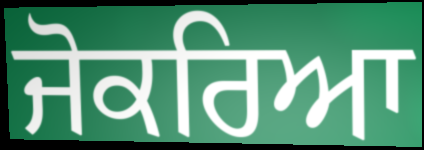
ਜੋਕਰਿਆ